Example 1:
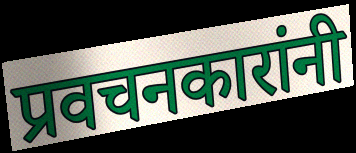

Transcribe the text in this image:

प्रवचनकारांनी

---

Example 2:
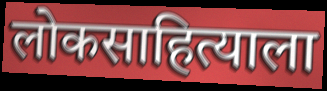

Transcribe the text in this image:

लोकसाहित्याला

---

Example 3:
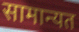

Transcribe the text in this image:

सामान्यत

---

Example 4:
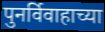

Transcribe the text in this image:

पुनर्विवाहाच्या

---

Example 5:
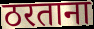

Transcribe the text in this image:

ठरताना